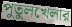
পুতুলখেলার